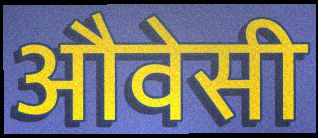
औवेसी